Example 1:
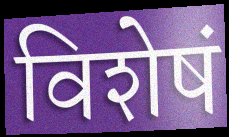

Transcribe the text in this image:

विशेषं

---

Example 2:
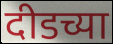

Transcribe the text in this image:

दीडच्या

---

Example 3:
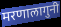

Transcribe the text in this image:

मरणालागुनी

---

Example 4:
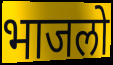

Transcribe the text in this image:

भाजलो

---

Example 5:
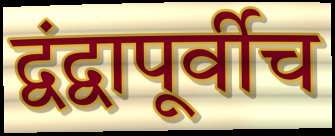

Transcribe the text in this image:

द्वंद्वापूर्वीच